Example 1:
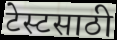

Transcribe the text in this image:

टेस्टसाठी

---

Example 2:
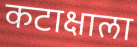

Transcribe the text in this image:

कटाक्षाला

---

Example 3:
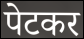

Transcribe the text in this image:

पेटकर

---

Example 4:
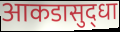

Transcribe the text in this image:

आकडासुद्धा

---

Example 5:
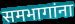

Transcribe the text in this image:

समभागांना